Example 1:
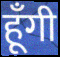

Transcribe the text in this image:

हूँगी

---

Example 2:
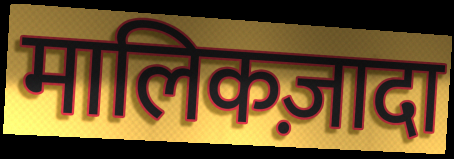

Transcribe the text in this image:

मालिकज़ादा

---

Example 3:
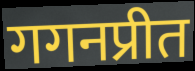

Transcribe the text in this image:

गगनप्रीत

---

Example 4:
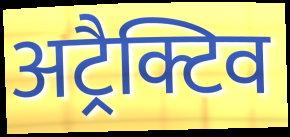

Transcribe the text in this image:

अट्रैक्टिव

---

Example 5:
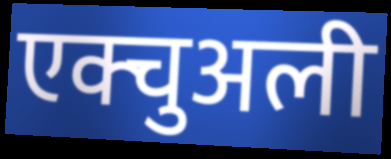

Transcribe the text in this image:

एक्चुअली